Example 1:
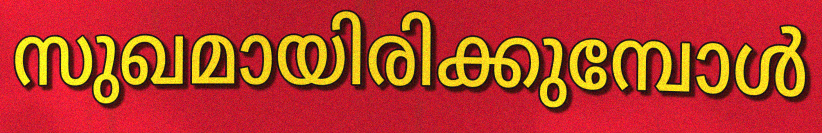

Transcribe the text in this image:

സുഖമായിരിക്കുമ്പോൾ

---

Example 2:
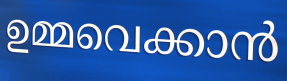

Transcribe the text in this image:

ഉമ്മവെക്കാൻ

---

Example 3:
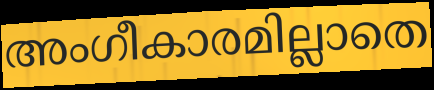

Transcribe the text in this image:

അംഗീകാരമില്ലാതെ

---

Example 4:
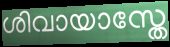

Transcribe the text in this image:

ശിവായാസ്തേ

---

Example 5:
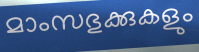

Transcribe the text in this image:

മാംസഭുക്കുകളും